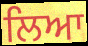
ਲਿਆ